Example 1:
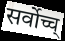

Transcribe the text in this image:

सर्वोच्च्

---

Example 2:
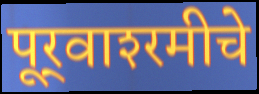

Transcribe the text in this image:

पूर्वाश्रमीचे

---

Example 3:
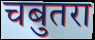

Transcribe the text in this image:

चबुतरा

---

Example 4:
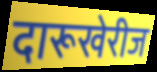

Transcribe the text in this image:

दारूखेरीज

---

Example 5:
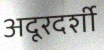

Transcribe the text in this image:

अदूरदर्शी